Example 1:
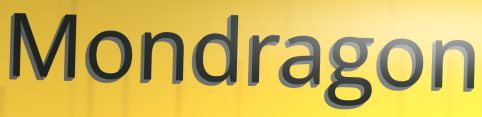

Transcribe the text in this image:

Mondragon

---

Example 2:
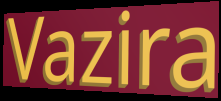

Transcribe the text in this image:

Vazira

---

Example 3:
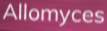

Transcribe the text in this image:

Allomyces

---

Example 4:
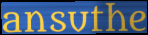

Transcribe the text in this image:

ansuthe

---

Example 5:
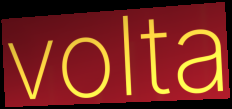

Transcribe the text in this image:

volta